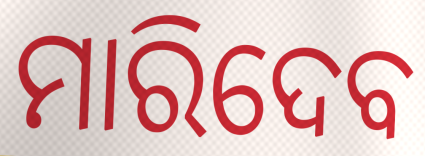
ମାରିଦେବ